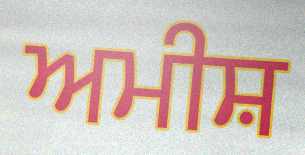
ਅਮੀਸ਼